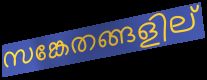
സങ്കേതങ്ങളില്